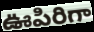
ఊపిరిగా